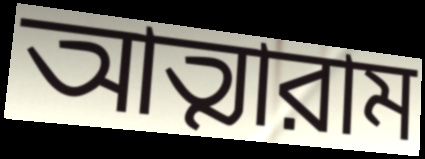
আত্মারাম